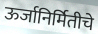
ऊर्जानिर्मितीचे